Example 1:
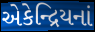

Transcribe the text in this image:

એકેન્દ્રિયનાં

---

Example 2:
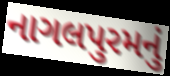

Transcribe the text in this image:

નાગલપુરમનું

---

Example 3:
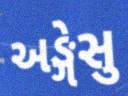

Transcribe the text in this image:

અઙ્ગેસુ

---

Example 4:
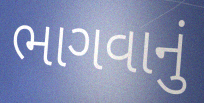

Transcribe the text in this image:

ભાગવાનું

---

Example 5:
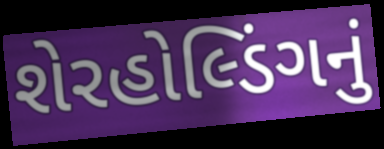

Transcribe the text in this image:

શેરહોલ્ડિંગનું